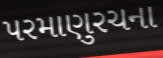
પરમાણુરચના